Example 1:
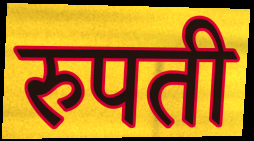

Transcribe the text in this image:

रुपती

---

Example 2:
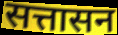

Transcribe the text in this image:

सत्तासन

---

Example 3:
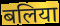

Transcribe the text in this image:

बलिया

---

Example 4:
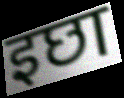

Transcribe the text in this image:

इछा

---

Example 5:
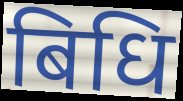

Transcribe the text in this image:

बिधि